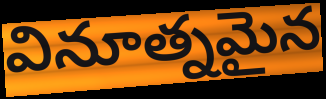
వినూత్నమైన